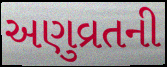
અણુવ્રતની